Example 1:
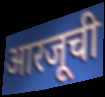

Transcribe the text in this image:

आरजूची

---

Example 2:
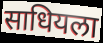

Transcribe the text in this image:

साधियला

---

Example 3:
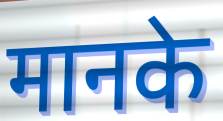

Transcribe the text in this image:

मानके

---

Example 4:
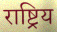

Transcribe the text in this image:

राष्ट्रिय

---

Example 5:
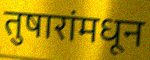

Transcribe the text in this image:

तुषारांमधून